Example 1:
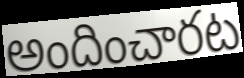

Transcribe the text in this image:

అందించారట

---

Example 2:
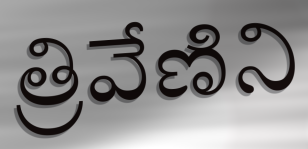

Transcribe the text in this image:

త్రివేణిని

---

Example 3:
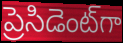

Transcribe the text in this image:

ప్రెసిడెంట్‌గా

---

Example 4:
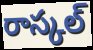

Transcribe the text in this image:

రాస్కల్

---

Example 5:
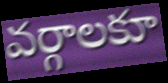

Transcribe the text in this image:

వర్గాలకూ